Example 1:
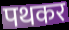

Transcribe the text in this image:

पथकर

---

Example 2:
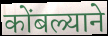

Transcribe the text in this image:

कोंबल्याने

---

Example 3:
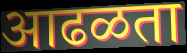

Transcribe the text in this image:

आढळता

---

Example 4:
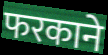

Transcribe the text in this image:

फरकाने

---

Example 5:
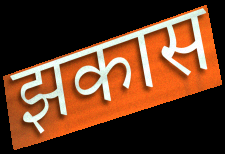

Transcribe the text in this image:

झकास